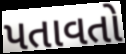
પતાવતો